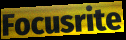
Focusrite